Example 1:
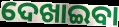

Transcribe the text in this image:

ଦେଖାଇବା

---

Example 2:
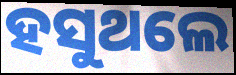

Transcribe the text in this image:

ହସୁଥଲେ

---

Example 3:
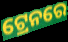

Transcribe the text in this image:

ଟ୍ରେନରେ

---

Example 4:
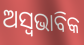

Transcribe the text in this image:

ଅସ୍ୱଭାବିକ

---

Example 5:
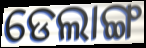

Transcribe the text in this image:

ଡେଲାଙ୍ଗ